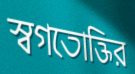
স্বগতোক্তির